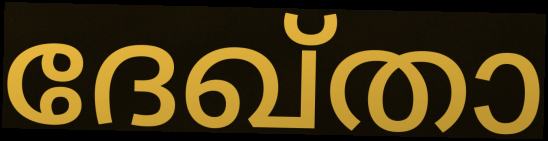
ദേഖ്താ